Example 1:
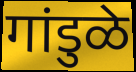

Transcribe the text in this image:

गांडुळे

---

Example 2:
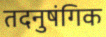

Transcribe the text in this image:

तदनुषंगिक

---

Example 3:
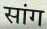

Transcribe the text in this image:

सांग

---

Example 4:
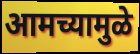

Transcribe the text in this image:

आमच्यामुळे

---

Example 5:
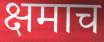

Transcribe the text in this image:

क्षमाच